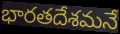
భారతదేశమనే